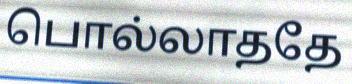
பொல்லாததே